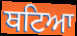
ਥਟਿਆ